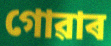
গোৱাৰ